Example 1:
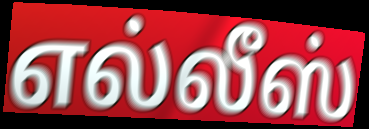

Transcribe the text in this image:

எல்லீஸ்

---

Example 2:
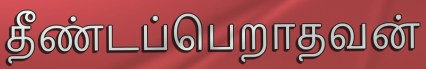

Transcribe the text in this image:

தீண்டப்பெறாதவன்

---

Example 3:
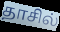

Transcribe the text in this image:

தாசில்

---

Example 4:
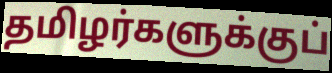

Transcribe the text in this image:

தமிழர்களுக்குப்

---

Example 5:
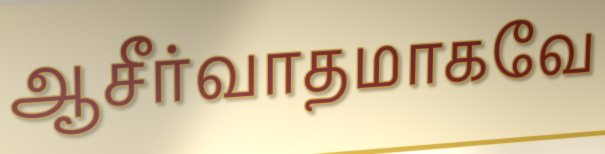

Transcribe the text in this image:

ஆசீர்வாதமாகவே